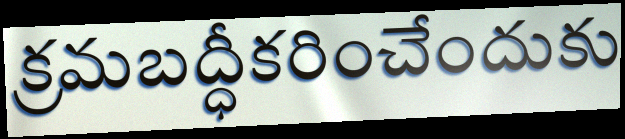
క్రమబద్ధీకరించేందుకు